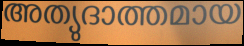
അത്യുദാത്തമായ